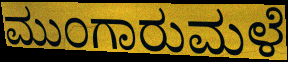
ಮುಂಗಾರುಮಳೆ